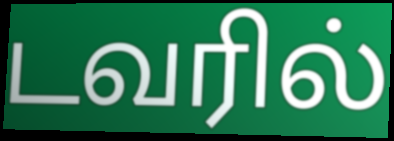
டவரில்